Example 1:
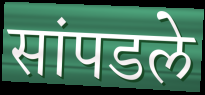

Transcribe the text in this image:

सांपडले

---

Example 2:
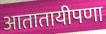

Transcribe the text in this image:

आतातायीपणा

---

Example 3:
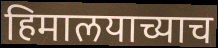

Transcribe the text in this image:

हिमालयाच्याच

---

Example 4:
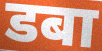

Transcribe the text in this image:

डबा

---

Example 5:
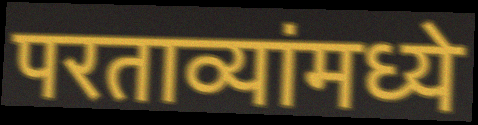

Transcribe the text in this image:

परताव्यांमध्ये